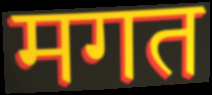
मगत